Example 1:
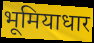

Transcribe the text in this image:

भूमियाधार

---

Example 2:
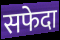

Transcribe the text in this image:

सफेदा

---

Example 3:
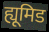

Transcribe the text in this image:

ह्यूमिड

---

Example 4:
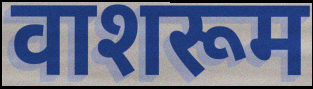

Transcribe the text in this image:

वाशरूम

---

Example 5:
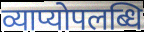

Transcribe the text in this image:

व्याप्योपलब्धि